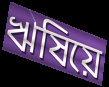
ঋষিয়ে